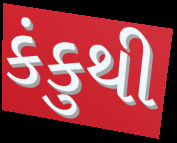
કંકુથી